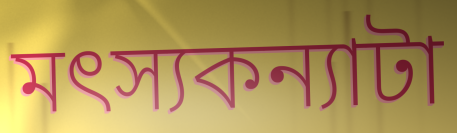
মৎস্যকন্যাটা